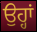
ਉਹ੍ਹਾਂ